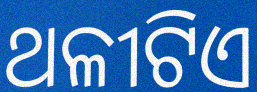
ଥଳୀଟିଏ